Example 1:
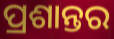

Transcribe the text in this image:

ପ୍ରଶାନ୍ତର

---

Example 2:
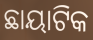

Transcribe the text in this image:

ଛାୟାଟିକ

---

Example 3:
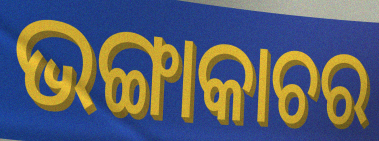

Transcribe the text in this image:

ଭଙ୍ଗାକାଚର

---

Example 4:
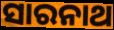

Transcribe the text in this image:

ସାରନାଥ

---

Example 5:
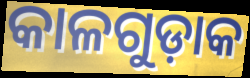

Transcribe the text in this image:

କାଳଗୁଡ଼ାକ